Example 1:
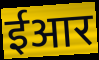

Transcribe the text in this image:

ईआर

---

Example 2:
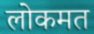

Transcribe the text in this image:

लोकमत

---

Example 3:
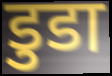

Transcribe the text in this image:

डुडा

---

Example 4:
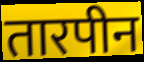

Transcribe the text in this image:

तारपीन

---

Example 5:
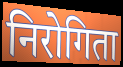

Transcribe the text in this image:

निरोगिता